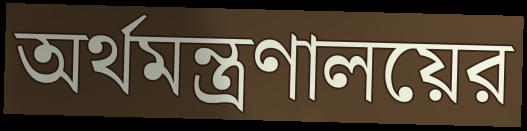
অর্থমন্ত্রণালয়ের